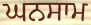
ਘਨਸਾਮ